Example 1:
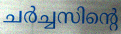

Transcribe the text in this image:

ചർച്ചസിന്റെ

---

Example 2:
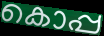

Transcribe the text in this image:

കൊപ്പ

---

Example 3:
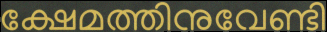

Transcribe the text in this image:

ക്ഷേമത്തിനുവേണ്ടി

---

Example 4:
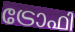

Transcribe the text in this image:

ട്രോഫി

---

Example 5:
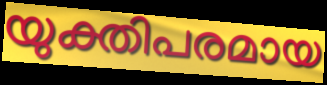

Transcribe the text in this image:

യുക്തിപരമായ